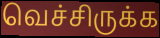
வெச்சிருக்க